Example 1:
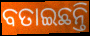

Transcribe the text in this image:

ବତାଇଛନ୍ତି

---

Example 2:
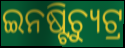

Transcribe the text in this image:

ଇନଷ୍ଟିଚ୍ୟୁଟ୍ର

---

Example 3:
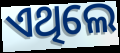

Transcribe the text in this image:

ଏଥିଲେ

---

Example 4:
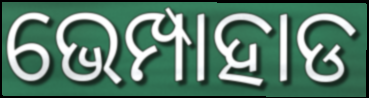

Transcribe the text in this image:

ଭେମ୍ପାହାଡ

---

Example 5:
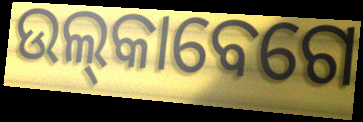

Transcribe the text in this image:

ଉଲ୍‌କାବେଗେ